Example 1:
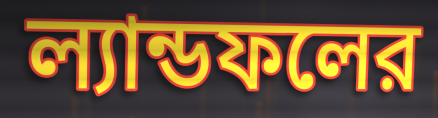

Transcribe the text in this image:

ল্যান্ডফলের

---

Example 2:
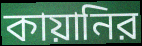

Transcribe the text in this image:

কায়ানির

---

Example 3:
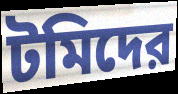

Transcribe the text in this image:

টমিদের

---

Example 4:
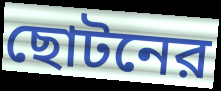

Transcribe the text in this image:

ছোটনের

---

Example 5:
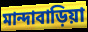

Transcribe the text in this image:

মান্দাবাড়িয়া